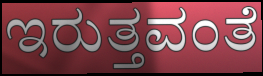
ಇರುತ್ತವಂತೆ